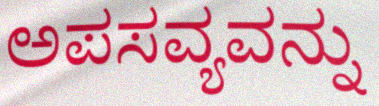
ಅಪಸವ್ಯವನ್ನು